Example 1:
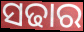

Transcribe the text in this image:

ସଢାର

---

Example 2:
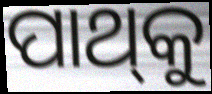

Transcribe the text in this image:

ପାଥ୍‌କୁ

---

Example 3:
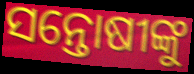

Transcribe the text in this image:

ସନ୍ତୋଷୀଙ୍କୁ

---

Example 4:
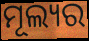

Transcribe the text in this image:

ମୂଲ୍ଯର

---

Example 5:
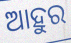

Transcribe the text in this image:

ଆହୁର